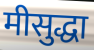
मीसुद्धा